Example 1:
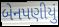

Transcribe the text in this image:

બેનપણીયું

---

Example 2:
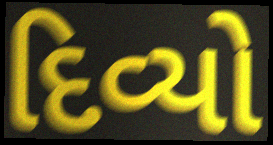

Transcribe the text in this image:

દિવ્યો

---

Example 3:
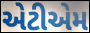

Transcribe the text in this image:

એટીએમ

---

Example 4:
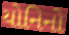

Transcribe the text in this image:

યોનિનો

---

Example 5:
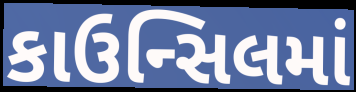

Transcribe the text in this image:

કાઉન્સિલમાં